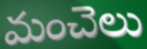
మంచెలు